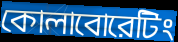
কোলাবোরেটিং